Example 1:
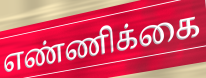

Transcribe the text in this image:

எண்ணிக்கை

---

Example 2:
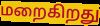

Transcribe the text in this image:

மறைகிறது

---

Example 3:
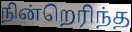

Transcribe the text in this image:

நின்றெரிந்த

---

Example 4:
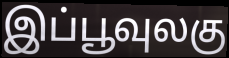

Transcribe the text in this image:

இப்பூவுலகு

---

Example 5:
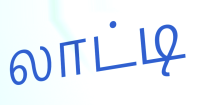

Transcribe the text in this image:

லாட்டி